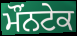
ਮੌਂਨਟੇਕ